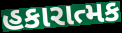
હકારાત્મક